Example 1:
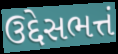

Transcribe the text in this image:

ઉદ્દેસભત્તં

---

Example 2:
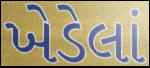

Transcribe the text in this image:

ખેડેલાં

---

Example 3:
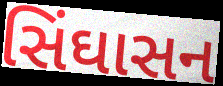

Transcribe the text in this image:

સિંઘાસન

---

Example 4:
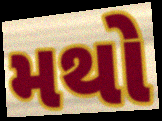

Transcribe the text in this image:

મથો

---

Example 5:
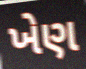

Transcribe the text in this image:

ખેણ